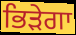
ਭਿੜੇਗਾ